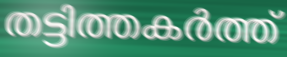
തട്ടിത്തകർത്ത്